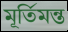
মূর্তিমন্ত